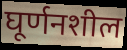
घूर्णनशील